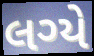
લગ્યે